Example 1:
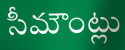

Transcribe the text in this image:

సీమౌంట్లు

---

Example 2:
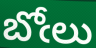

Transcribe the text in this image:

బోఁలు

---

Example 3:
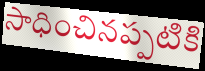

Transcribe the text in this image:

సాధించినప్పటికి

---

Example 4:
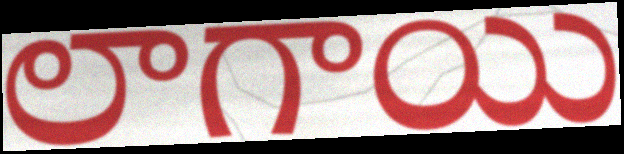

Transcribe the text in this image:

లాగాయి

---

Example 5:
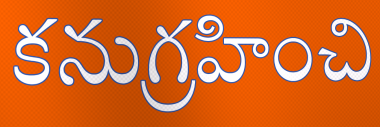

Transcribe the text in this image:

కనుగ్రహించి